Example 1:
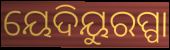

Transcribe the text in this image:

ୟେଦିୟୁରପ୍ପା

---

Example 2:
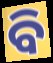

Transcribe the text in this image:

ବି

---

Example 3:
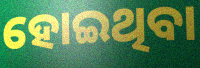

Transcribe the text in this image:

ହୋଇଥିବା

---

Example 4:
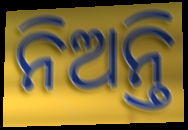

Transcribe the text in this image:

ନିଅନ୍ତି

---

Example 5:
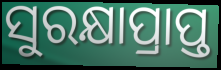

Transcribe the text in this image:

ସୁରକ୍ଷାପ୍ରାପ୍ତ